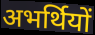
अभर्थियों